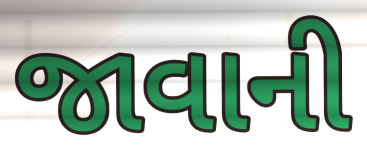
જાવાની